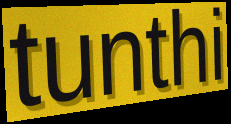
tunthi